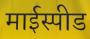
माईस्पीड